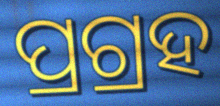
ପ୍ରଗ୍ରହ